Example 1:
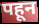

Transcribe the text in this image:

पहून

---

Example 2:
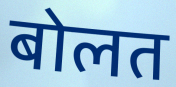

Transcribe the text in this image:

बोलत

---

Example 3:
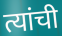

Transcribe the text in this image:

त्यांची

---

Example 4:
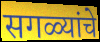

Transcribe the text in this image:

सगळ्यांचे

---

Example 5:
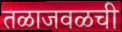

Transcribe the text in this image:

तळाजवळची